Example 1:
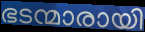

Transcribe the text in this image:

ഭടന്മാരായി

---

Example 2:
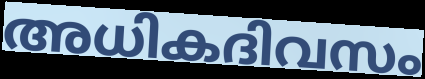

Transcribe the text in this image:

അധികദിവസം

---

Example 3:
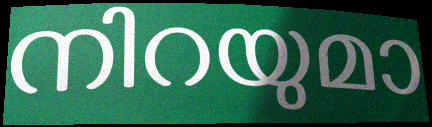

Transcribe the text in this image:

നിറയുമാ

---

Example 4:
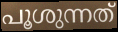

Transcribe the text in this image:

പൂശുന്നത്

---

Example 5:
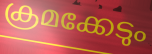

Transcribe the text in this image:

ക്രമക്കേടും